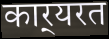
कार्यरत